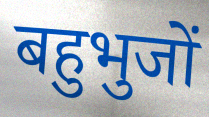
बहुभुजों